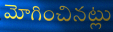
మోగించినట్లు